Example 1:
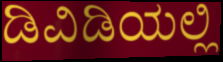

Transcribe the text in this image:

ಡಿವಿಡಿಯಲ್ಲಿ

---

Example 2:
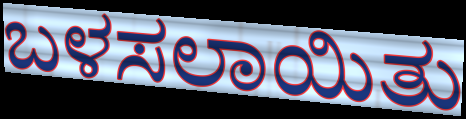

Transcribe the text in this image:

ಬಳಸಲಾಯಿತು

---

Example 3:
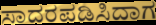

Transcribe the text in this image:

ಸಾದರಪಡಿಸಿದಾಗ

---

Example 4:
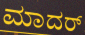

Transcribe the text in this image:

ಮಾದರ್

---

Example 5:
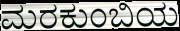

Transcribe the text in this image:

ಮರಕುಂಬಿಯ